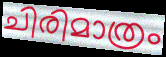
ചിരിമാത്രം